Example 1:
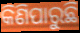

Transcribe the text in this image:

କିଣିପାରୁଛି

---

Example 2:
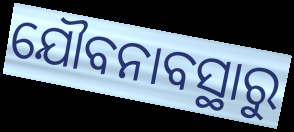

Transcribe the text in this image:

ଯୌବନାବସ୍ଥାରୁ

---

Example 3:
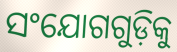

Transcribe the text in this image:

ସଂଯୋଗଗୁଡ଼ିକୁ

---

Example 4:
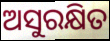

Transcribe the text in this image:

ଅସୁରକ୍ଷିତ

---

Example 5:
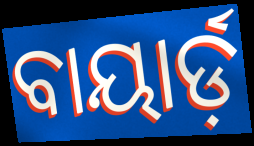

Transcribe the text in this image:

ବାୟାର୍ଡ଼